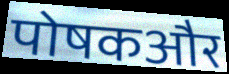
पोषकऔर